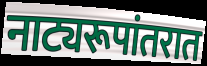
नाट्यरूपांतरात